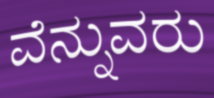
ವೆನ್ನುವರು